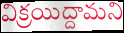
విక్రయిద్దామని